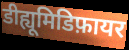
डीह्यूमिडिफ़ायर